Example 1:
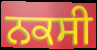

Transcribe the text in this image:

ਨਕਸੀ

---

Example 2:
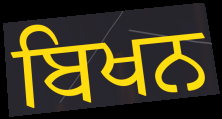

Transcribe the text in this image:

ਬਿਖਨ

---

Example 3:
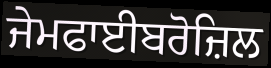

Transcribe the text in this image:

ਜੇਮਫਾਈਬਰੋਜ਼ਿਲ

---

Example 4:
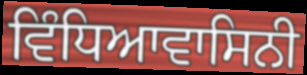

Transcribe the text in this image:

ਵਿੰਧਿਆਵਾਸਿਨੀ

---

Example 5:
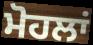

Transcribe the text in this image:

ਮੋਹਲਾਂ